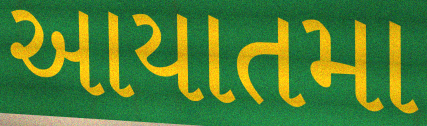
આયાતમા